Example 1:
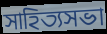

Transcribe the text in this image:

সাহিত্যসভা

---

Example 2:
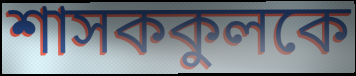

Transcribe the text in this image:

শাসককুলকে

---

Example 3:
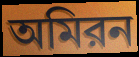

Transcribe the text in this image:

অমিরন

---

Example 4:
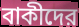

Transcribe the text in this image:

বাকীদের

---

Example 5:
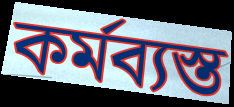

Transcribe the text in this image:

কর্মব্যস্ত